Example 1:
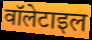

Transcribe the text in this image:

वॉलेटाइल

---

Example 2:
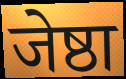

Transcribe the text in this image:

जेष्ठा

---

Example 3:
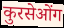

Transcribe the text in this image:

कुरसेओंग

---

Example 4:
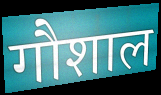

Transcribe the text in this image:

गौशाल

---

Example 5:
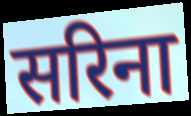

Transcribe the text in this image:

सरिना